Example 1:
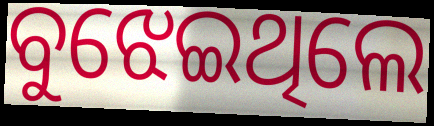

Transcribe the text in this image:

ବୁଝେଇଥିଲେ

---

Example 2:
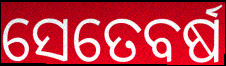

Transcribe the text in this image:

ସେତେବର୍ଷ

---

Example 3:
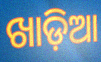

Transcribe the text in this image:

ଖାଡ଼ିଆ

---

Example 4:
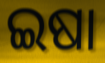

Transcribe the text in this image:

ଇଷା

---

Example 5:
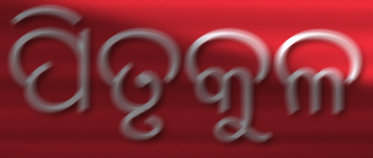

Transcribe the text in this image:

ପିତୃକୁଳ